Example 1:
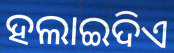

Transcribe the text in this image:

ହଲାଇଦିଏ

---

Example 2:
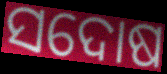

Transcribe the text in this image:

ସଦୋଷ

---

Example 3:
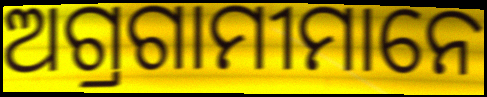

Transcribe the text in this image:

ଅଗ୍ରଗାମୀମାନେ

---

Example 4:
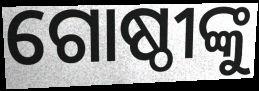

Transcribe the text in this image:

ଗୋଷ୍ଠୀଙ୍କୁ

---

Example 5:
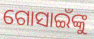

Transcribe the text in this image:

ଗୋସାଇଁଙ୍କୁ